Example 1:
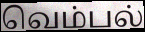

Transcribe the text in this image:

வெம்பல்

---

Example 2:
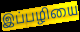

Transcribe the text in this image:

இப்பழியை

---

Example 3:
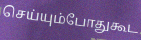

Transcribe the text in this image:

செய்யும்போதுகூட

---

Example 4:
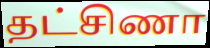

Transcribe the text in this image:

தட்சிணா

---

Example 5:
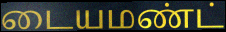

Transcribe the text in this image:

டையமண்ட்